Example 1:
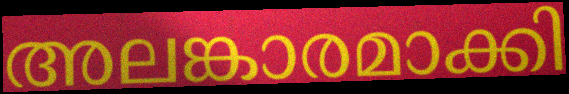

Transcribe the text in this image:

അലങ്കാരമാക്കി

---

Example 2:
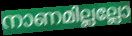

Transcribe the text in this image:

നാണമില്ലല്ലോ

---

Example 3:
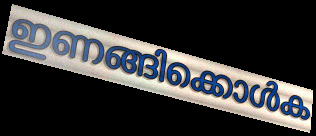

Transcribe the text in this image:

ഇണങ്ങിക്കൊൾക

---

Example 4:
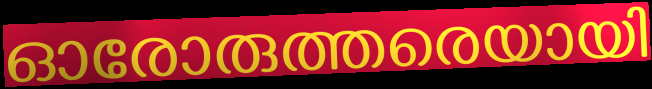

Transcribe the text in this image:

ഓരോരുത്തരെയായി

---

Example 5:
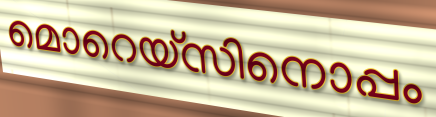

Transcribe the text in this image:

മൊറെയ്സിനൊപ്പം